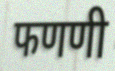
फणणी